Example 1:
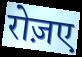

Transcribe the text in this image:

रोज़ए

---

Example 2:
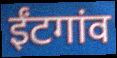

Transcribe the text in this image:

ईंटगांव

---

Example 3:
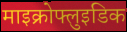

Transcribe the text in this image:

माइक्रोफ्लुइडिक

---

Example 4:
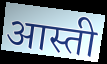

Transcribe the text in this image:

आस्ती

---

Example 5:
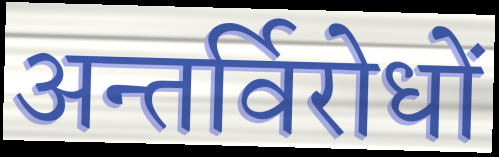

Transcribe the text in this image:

अन्तर्विरोधों